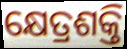
କ୍ଷେତ୍ରଶକ୍ତି